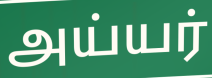
அய்யர்